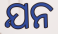
ଯନ